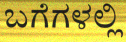
ಬಗೆಗಳಲ್ಲಿ